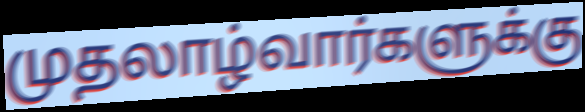
முதலாழ்வார்களுக்கு